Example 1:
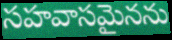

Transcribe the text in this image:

సహవాసమైనను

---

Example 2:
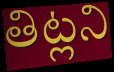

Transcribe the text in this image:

తిట్లని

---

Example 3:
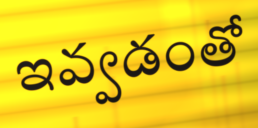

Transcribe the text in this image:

ఇవ్వడంతో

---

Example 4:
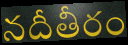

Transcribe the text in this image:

నదీతీరం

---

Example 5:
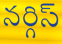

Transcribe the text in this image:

నర్గిస్